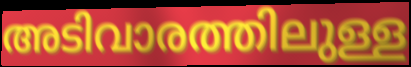
അടിവാരത്തിലുള്ള